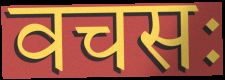
वचसः